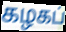
கழகப்